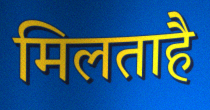
मिलताहै